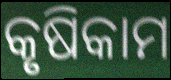
କୃଷିକାମ